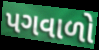
પગવાળો